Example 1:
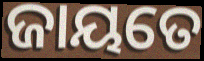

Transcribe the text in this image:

ଜାୟତେ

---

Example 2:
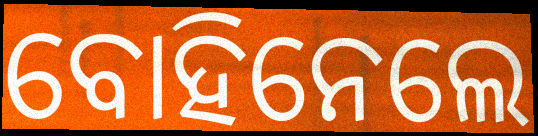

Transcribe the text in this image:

ବୋହିନେଲେ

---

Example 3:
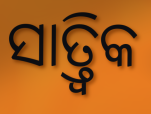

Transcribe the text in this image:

ସାତ୍ତ୍ବିକ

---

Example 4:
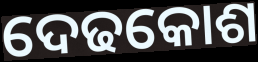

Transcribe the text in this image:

ଦେଢକୋଶ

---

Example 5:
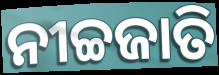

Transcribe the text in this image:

ନୀଚ୍ଚଜାତି